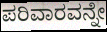
ಪರಿವಾರವನ್ನೇ